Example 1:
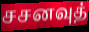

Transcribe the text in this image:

சசனவுத்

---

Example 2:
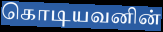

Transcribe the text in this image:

கொடியவனின்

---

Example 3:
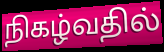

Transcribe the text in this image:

நிகழ்வதில்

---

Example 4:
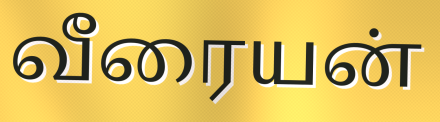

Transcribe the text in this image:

வீரையன்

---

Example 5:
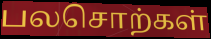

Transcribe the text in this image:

பலசொற்கள்